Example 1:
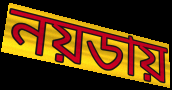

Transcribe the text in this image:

নয়ডায়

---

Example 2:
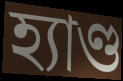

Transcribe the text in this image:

হ্যাণ্ড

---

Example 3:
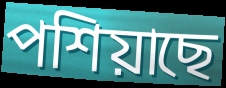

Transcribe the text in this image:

পশিয়াছে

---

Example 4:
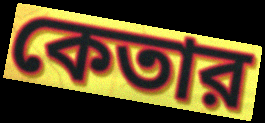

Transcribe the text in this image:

কেতার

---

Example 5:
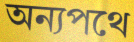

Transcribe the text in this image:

অন্যপথে